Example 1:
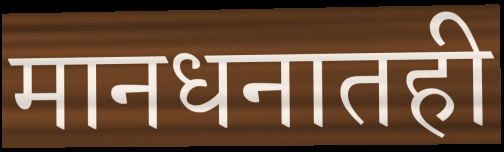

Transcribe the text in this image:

मानधनातही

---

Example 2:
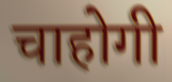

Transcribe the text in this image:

चाहोगी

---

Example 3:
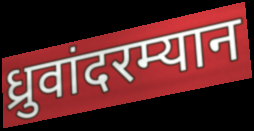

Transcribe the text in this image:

ध्रुवांदरम्यान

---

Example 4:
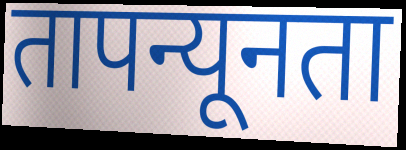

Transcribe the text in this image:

तापन्यूनता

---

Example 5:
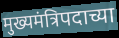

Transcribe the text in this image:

मुख्यमंत्रिपदाच्या